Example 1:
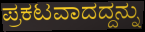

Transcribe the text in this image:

ಪ್ರಕಟವಾದದ್ದನ್ನು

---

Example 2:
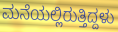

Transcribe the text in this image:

ಮನೆಯಲ್ಲಿರುತ್ತಿದ್ದಳು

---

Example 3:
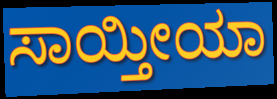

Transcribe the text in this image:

ಸಾಯ್ತೀಯಾ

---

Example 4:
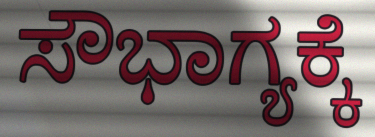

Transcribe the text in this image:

ಸೌಭಾಗ್ಯಕ್ಕೆ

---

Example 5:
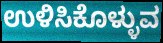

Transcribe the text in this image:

ಉಳಿಸಿಕೊಳ್ಳುವ